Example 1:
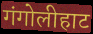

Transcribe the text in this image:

गंगोलीहाट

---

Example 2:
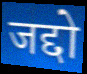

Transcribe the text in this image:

जद्दो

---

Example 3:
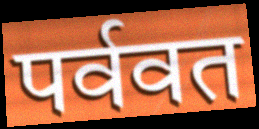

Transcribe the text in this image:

पर्ववत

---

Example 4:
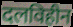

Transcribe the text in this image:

दलविहीन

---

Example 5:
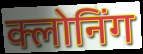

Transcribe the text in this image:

क्लोनिंग